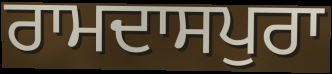
ਰਾਮਦਾਸਪੁਰਾ